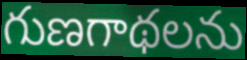
గుణగాథలను